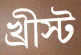
খ্রীস্ট